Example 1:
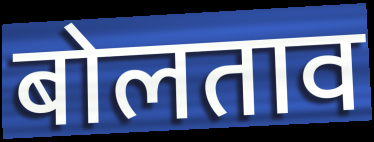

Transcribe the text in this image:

बोलताव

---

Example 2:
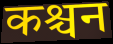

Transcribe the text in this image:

कश्चन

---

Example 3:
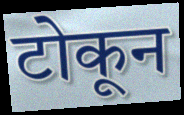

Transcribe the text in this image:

टोकून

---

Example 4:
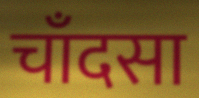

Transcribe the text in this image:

चाँदसा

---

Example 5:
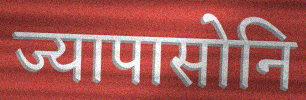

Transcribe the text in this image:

ज्यापासोनि